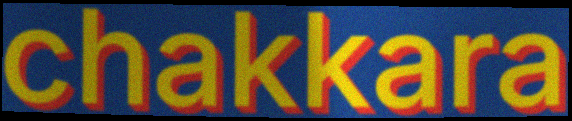
chakkara